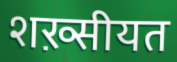
शख़्सीयत